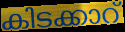
കിടക്കാറ്